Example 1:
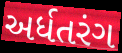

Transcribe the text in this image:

અર્ધતરંગ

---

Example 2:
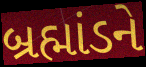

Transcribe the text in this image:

બ્રહ્માંડને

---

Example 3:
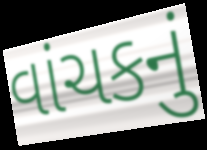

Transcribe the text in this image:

વાંચકનું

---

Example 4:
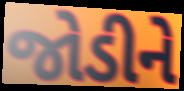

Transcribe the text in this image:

જોડીને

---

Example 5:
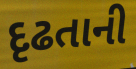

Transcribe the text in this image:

દૃઢતાની